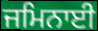
ਜਮਿਨਾਈ